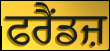
ਫਰੈਂਡਜ਼